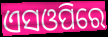
ଏସଓପିରେ